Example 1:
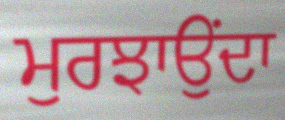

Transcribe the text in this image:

ਮੁਰਝਾਉਂਦਾ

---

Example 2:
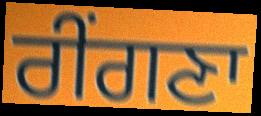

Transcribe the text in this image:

ਰੀਂਗਣਾ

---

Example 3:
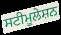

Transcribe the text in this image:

ਸਟੀਮੂਲੇਸ਼ਨ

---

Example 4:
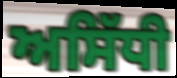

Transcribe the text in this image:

ਅਸਿੱਧੀ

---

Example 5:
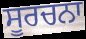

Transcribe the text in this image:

ਸੂਰਚਨਾ